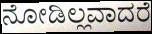
ನೋಡಿಲ್ಲವಾದರೆ